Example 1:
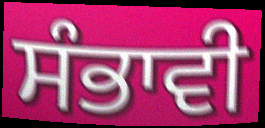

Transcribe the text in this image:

ਸੰਭਾਵੀ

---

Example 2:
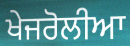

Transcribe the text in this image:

ਖੇਜਰੋਲੀਆ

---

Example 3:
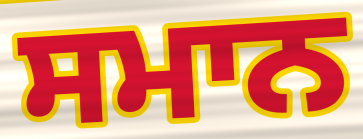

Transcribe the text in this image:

ਸਮਾਨ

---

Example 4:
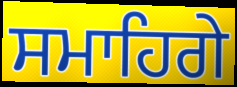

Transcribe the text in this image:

ਸਮਾਹਿਗੇ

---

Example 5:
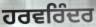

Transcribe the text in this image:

ਹਰਵਰਿੰਦਰ